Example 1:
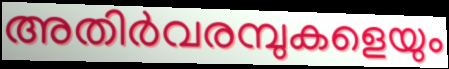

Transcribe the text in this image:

അതിർവരമ്പുകളെയും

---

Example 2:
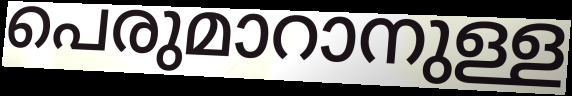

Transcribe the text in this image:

പെരുമാറാനുള്ള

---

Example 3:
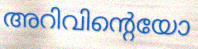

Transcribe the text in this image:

അറിവിന്റെയോ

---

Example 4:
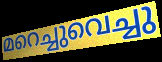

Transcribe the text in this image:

മറെച്ചുവെച്ചു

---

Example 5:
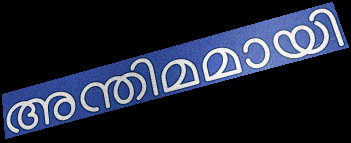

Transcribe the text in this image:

അന്തിമമായി